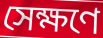
সেক্ষণে